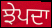
ਝੇਪਦਾ